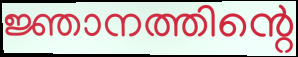
ജ്ഞാനത്തിന്റെ